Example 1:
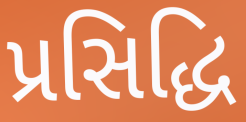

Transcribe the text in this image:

પ્રસિદ્ધિ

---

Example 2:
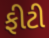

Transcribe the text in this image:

ફીટી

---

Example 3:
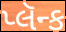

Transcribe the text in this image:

પ્લૅન્ક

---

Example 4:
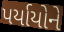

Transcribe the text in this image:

પર્યાયોને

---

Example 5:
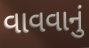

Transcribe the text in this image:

વાવવાનું